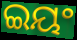
ଇୟଂ